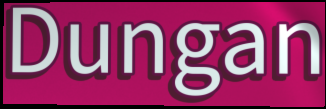
Dungan